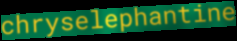
chryselephantine